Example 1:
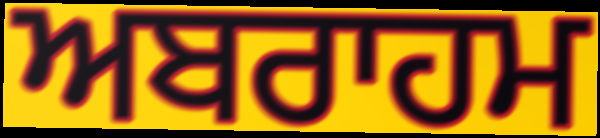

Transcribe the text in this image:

ਅਬਰਾਹਮ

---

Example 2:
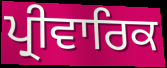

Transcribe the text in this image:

ਪ੍ਰੀਵਾਰਿਕ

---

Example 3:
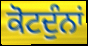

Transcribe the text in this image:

ਕੋਟਦੁੰਨਾਂ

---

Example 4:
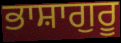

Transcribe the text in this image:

ਭਾਸ਼ਾਗੁਰੂ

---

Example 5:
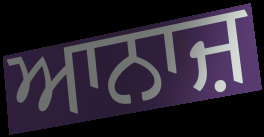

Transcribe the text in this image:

ਆਨਾਜ਼